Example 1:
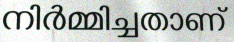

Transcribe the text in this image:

നിർമ്മിച്ചതാണ്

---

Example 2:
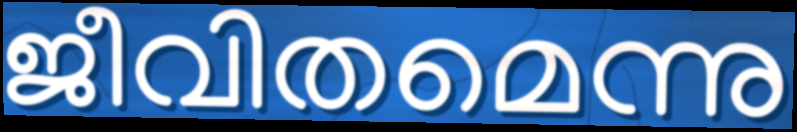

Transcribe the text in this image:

ജീവിതമെന്നു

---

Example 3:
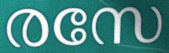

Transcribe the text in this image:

രസേ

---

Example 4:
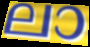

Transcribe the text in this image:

ലാ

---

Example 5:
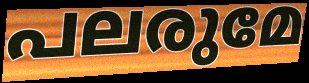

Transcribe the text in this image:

പലരുമേ